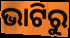
ଭାଟିରୁ